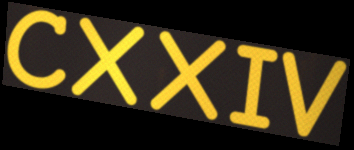
CXXIV